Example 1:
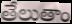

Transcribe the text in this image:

తేలుతాం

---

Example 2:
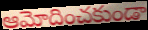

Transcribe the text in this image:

ఆమోదించకుండా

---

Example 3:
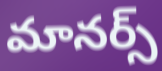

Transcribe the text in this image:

మానర్స్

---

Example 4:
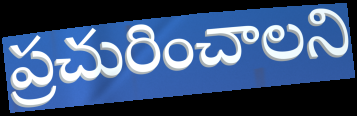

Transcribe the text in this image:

ప్రచురించాలని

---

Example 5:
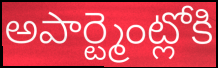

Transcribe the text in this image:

అపార్ట్మెంట్లోకి